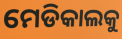
ମେଡିକାଲକୁ